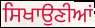
ਸਿਖਾਉਣੀਆਂ